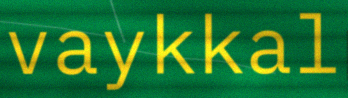
vaykkal